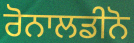
ਰੋਨਾਲਡੀਨੋ